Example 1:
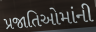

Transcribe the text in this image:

પ્રજાતિઓમાંની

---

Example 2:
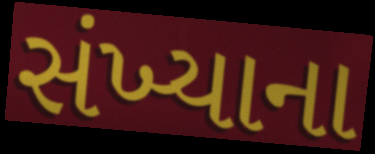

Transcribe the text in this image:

સંખ્યાના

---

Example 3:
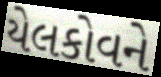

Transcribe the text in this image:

યેલકોવને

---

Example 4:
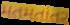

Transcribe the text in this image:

મતમતાંતર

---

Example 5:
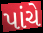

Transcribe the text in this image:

પાંચે